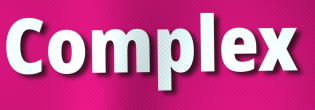
Complex